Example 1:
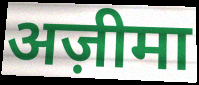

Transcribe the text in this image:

अज़ीमा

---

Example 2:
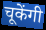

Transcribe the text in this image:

चूकेंगी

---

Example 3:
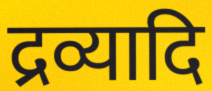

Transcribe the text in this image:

द्रव्यादि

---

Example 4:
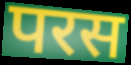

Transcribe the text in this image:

परस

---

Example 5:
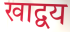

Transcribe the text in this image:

खाद्वय